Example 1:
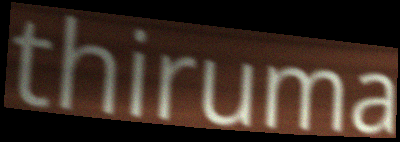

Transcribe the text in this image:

thiruma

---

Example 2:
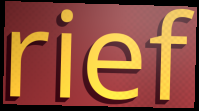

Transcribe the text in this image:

rief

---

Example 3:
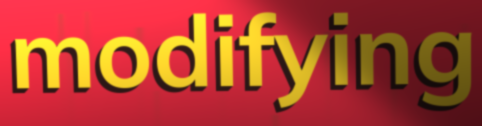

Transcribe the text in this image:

modifying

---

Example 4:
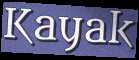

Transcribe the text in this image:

Kayak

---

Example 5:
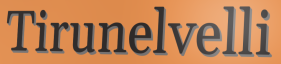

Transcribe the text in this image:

Tirunelvelli